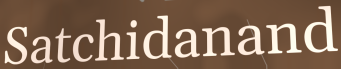
Satchidanand